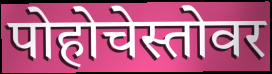
पोहोचेस्तोवर